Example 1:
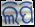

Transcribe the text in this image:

ଲିପି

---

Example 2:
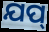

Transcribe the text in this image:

ଯପ୍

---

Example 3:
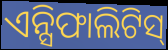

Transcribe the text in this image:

ଏନ୍ସିଫାଲିଟିସ୍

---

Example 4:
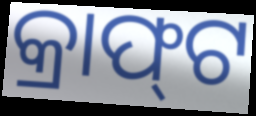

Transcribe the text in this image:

କ୍ରାଫ୍‌ଟ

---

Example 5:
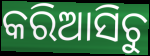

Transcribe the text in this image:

କରିଆସିଚୁ